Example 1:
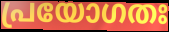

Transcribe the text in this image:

പ്രയോഗതഃ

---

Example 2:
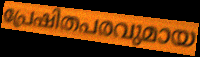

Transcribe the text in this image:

പ്രേഷിതപരവുമായ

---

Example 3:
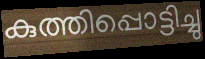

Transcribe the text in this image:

കുത്തിപ്പൊട്ടിച്ചു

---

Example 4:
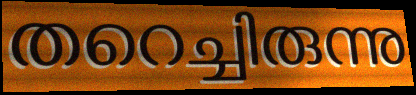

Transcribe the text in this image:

തറെച്ചിരുന്നു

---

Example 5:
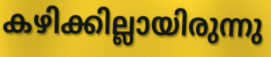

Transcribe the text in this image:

കഴിക്കില്ലായിരുന്നു